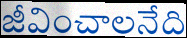
జీవించాలనేది